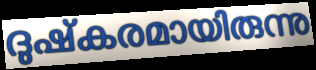
ദുഷ്‌കരമായിരുന്നു